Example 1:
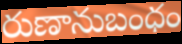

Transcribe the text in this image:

రుణానుబంధం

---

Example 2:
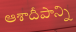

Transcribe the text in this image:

ఆశాదీపాన్ని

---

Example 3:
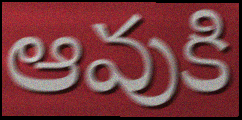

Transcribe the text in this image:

ఆవుకి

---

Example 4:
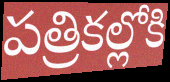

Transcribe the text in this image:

పత్రికల్లోకి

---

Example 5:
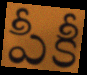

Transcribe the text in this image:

పీకీ